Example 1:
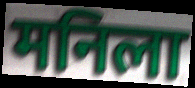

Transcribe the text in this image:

मनिला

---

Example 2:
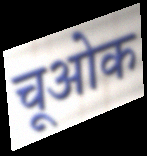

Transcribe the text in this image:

चूओक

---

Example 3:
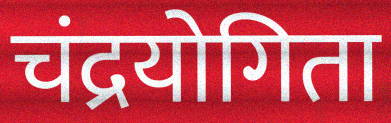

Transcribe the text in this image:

चंद्रयोगिता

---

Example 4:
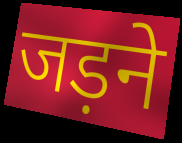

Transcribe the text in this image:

जड़ने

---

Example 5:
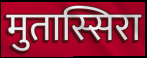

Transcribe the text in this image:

मुतास्सिरा